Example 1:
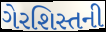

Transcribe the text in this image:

ગેરશિસ્તની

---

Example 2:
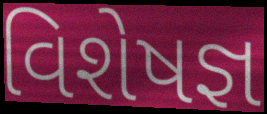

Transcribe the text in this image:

વિશેષજ્ઞ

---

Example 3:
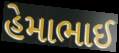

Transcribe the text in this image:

હેમાભાઈ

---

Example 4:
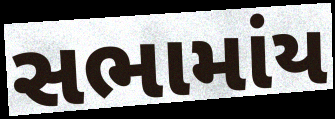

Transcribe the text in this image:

સભામાંય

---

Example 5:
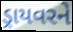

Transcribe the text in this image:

ડ્રાયવરને